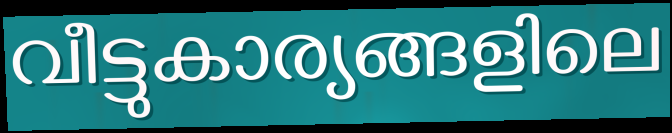
വീട്ടുകാര്യങ്ങളിലെ